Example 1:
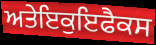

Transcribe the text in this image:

ਅਤੇਇਕੁਇਫੈਕਸ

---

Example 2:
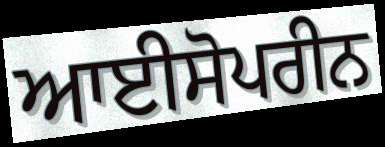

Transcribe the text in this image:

ਆਈਸੋਪਰੀਨ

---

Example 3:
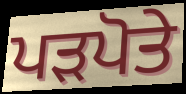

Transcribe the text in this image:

ਪੜਪੋਤੇ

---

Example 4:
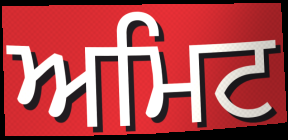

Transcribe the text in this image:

ਅਮਿਟ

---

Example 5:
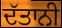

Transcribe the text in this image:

ਦੱਤਾਨੀ